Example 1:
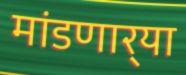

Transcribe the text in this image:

मांडणार्‍या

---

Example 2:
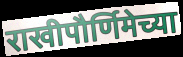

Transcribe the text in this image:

राखीपौर्णिमेच्या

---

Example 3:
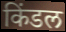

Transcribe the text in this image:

किंडल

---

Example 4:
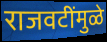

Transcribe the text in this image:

राजवटींमुळे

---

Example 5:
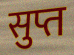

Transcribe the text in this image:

सुप्त